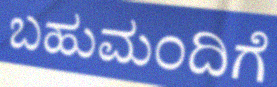
ಬಹುಮಂದಿಗೆ